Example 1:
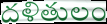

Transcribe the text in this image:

దళితులం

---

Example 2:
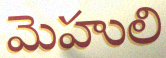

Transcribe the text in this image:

మెహులి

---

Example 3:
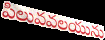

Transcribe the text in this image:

పిలువవలయును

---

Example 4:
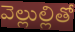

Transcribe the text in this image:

వెల్లుల్లితో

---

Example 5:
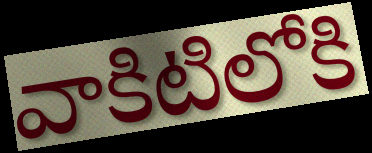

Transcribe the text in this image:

వాకిటిలోకి